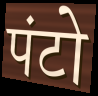
पंटो